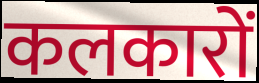
कलकारों